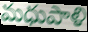
మధుపాళి